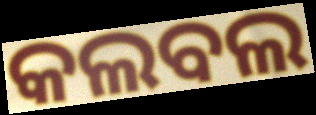
କଲବଲ